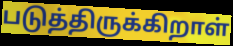
படுத்திருக்கிறாள்